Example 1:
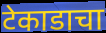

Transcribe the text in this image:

टेकाडाचा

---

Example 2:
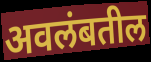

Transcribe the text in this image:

अवलंबतील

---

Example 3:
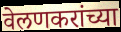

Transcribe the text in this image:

वेलणकरांच्या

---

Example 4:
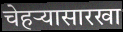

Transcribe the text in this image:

चेहऱ्यासारखा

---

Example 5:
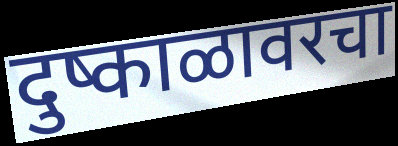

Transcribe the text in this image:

दुष्काळावरचा